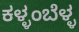
ಕಳ್ಳಂಬೆಳ್ಳ